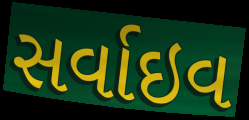
સર્વાઇવ